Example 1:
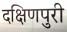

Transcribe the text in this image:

दक्षिणपुरी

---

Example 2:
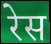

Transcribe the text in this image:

रेस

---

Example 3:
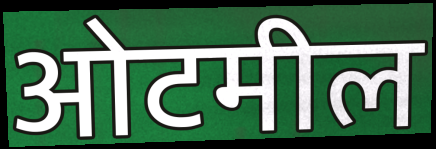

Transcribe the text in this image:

ओटमील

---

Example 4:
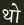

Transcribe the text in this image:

थो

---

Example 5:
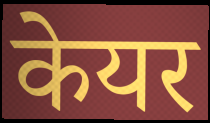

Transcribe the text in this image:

केयर